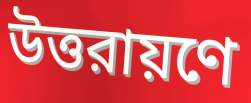
উত্তরায়ণে